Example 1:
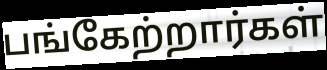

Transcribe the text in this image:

பங்கேற்றார்கள்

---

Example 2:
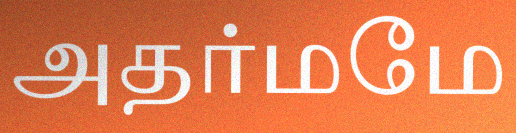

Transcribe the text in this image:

அதர்மமே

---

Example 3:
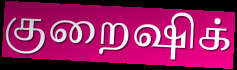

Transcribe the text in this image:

குறைஷிக்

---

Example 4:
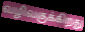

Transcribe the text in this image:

வழிவகுக்கிறது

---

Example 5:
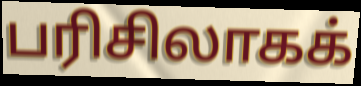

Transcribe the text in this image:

பரிசிலாகக்